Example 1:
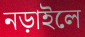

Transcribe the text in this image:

নড়াইলে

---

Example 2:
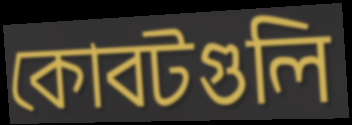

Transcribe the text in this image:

কোবটগুলি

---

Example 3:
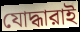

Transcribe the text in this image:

যোদ্ধারাই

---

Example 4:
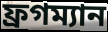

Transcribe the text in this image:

ফ্রগম্যান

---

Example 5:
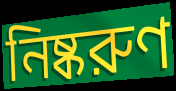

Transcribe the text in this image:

নিষ্করুণ